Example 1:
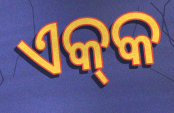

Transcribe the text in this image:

ଏକ୍‍କ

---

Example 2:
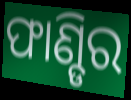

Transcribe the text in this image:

ଫାଣ୍ଡିର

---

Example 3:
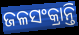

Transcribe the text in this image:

ଜଳସଂକ୍ରାନ୍ତି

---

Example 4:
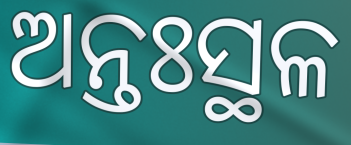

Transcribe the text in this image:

ଅନ୍ତଃସ୍ଥଳ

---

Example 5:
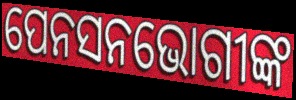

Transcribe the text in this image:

ପେନସନଭୋଗୀଙ୍କ